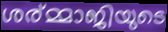
ശര്മ്മാജിയുടെ